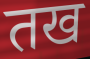
तख